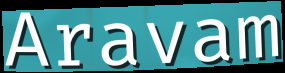
Aravam